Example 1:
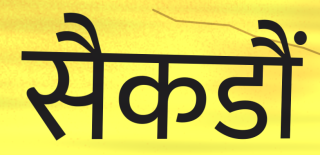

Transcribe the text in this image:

सैकडौं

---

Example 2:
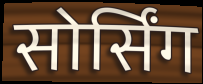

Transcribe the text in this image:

सोर्सिंग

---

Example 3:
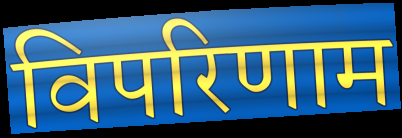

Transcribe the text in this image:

विपरिणाम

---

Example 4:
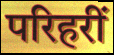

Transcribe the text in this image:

परिहरीं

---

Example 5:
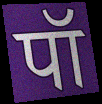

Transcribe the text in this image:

पॉ